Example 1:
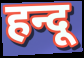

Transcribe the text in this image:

हन्दू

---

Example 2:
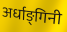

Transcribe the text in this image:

अर्धाङ्गिनी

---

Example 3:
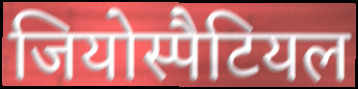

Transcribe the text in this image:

जियोस्पैटियल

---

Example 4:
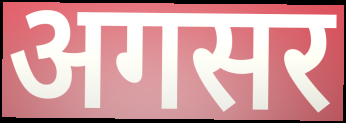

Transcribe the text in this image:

अगसर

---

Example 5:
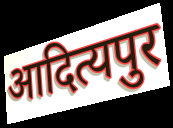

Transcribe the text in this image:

आदित्यपुर